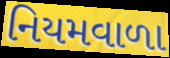
નિયમવાળા